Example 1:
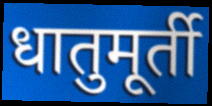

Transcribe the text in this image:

धातुमूर्ती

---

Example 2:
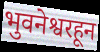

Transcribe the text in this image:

भुवनेश्वरहून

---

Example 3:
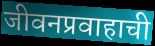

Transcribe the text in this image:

जीवनप्रवाहाची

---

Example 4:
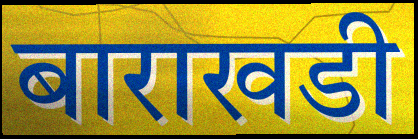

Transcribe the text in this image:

बाराखडी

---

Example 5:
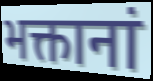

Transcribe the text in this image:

भक्तानां